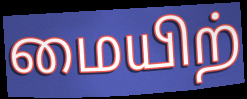
மையிற்